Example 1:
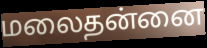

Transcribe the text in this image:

மலைதன்னை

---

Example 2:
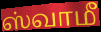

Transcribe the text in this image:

ஸ்வாமீ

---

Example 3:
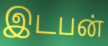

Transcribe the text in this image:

இடபன்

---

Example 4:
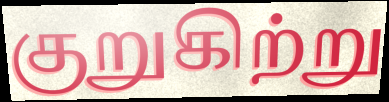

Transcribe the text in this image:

குறுகிற்று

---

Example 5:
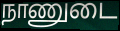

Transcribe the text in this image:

நாணுடை